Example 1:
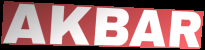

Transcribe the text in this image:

AKBAR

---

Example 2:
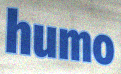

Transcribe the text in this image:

humo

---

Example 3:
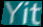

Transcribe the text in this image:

Yit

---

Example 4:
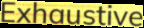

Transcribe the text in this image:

Exhaustive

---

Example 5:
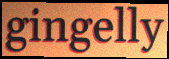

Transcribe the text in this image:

gingelly